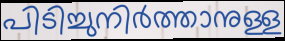
പിടിച്ചുനിർത്താനുള്ള